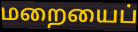
மறையைப்